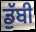
ਡੁੱਬੀ